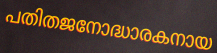
പതിതജനോദ്ധാരകനായ